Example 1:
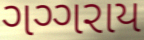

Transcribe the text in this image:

ગગ્ગરાય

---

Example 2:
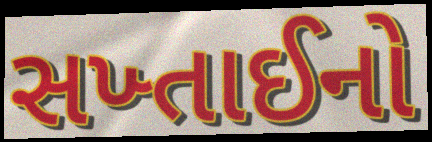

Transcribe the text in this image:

સખ્તાઈનો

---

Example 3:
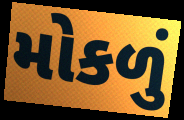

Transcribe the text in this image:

મોકળું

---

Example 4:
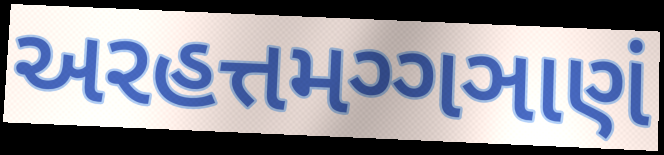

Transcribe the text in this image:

અરહત્તમગ્ગઞાણં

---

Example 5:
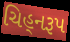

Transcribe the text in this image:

ચિહ્‌નરૂપ